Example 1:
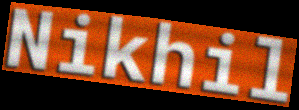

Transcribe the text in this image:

Nikhil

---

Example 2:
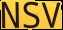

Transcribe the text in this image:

NSV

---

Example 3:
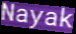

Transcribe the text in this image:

Nayak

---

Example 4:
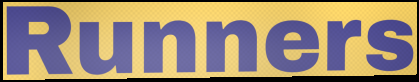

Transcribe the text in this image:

Runners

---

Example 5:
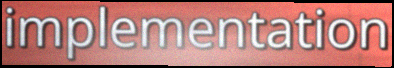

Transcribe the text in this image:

implementation